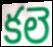
కలె